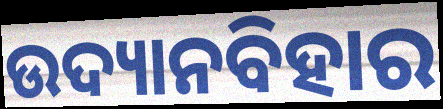
ଉଦ୍ୟାନବିହାର